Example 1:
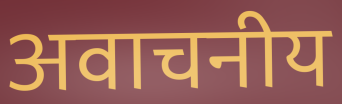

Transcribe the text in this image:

अवाचनीय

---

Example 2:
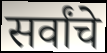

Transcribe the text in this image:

सर्वांचे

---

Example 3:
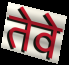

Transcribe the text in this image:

तेवे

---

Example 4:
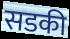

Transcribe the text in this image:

सडकी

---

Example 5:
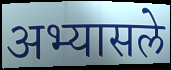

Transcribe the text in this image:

अभ्यासले